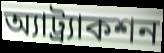
অ্যাট্র্যাকশন